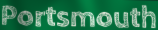
Portsmouth